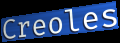
Creoles